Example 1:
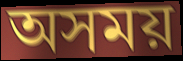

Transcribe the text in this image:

অসময়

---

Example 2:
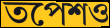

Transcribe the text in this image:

তপেশও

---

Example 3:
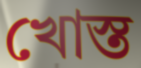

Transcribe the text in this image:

খোস্ত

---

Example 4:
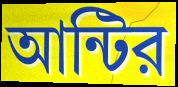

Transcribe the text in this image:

আন্টির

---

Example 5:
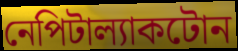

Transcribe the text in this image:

নেপিটাল্যাকটোন